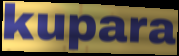
kupara